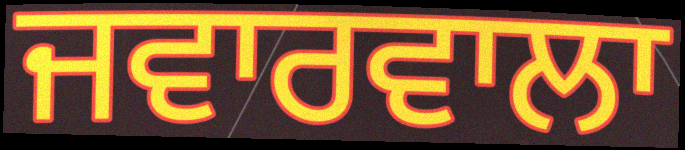
ਜਵਾਰਵਾਲਾ